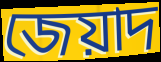
জেয়াদ